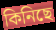
কিনিছে